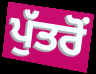
ਪੁੱਤਰੋਂ